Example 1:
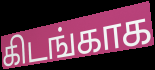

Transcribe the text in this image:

கிடங்காக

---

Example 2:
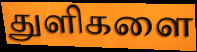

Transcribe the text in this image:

துளிகளை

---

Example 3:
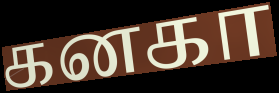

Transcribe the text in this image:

கனகா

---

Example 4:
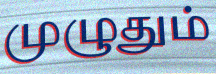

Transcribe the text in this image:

முழுதும்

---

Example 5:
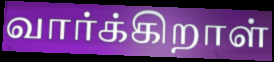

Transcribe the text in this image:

வார்க்கிறாள்